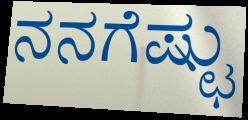
ನನಗೆಷ್ಟು